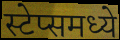
स्टेप्समध्ये